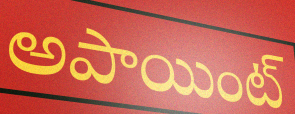
అపాయింట్